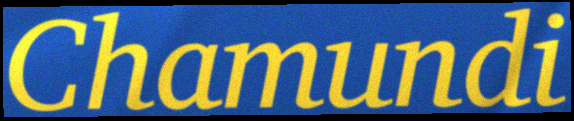
Chamundi